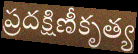
ప్రదక్షిణీకృత్య